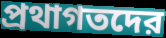
প্রথাগতদের